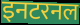
इनटरनल